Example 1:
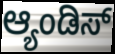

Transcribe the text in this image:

ಆ್ಯಂಡಿಸ್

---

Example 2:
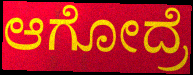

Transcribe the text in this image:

ಆಗೋದ್ರೆ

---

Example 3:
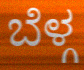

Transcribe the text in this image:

ಬೆಳ್ಗ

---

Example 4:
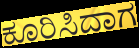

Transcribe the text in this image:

ಕೂರಿಸಿದಾಗ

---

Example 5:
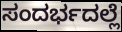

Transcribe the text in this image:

ಸಂದರ್ಭದಲ್ಲೆ